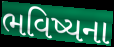
ભવિષ્યના